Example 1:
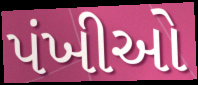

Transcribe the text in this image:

પંખીઓ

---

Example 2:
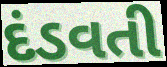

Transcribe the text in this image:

દંડવતી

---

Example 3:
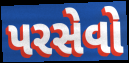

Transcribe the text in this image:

પરસેવો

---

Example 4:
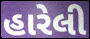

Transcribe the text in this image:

હારેલી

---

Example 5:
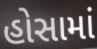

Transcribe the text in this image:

હોસામાં